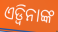
ଏଡ୍ୱିନାଙ୍କ